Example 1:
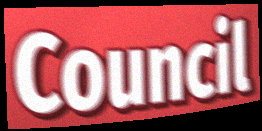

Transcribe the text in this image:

Council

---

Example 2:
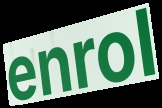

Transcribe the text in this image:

enrol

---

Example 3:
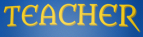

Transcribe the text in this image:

TEACHER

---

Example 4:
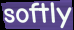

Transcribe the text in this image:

softly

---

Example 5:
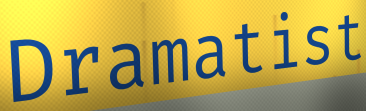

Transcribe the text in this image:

Dramatist